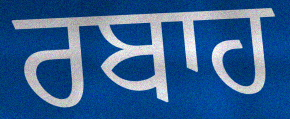
ਰਬਾਹ